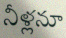
నీళ్లనూ